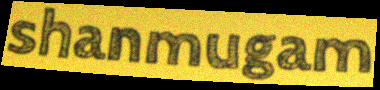
shanmugam